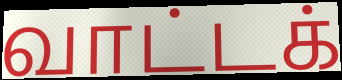
வாட்டக்